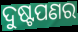
ଦୁଷ୍ଟପଣର